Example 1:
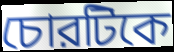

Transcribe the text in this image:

চোরটিকে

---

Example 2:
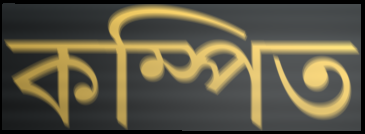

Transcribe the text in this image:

কম্পিত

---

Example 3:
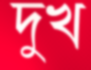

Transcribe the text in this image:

দুখ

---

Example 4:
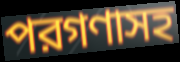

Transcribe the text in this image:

পরগণাসহ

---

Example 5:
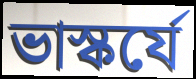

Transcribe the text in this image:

ভাস্কর্যে